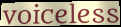
voiceless